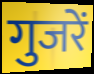
गुजरें